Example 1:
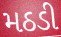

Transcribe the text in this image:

મઠડી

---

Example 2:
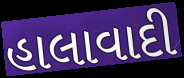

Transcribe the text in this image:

હાલાવાદી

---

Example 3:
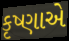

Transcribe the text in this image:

કૃષ્ણાએ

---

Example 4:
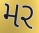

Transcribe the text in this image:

મર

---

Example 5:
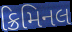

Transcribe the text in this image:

ક્રિમિનલ